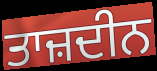
ਤਾਜ਼ਦੀਨ